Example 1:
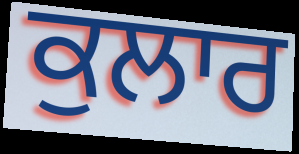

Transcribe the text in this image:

ਕੁਲਾਰ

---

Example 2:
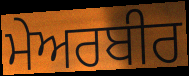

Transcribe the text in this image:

ਮੇਅਰਬੀਰ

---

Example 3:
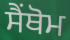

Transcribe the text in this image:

ਸੈਂਥੋਮ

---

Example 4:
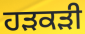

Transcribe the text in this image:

ਹੜਕੜੀ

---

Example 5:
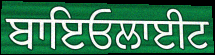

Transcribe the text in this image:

ਬਾਇਓਲਾਈਟ